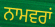
ਨਾਮਵਰਾਂ